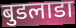
बुडलाडा